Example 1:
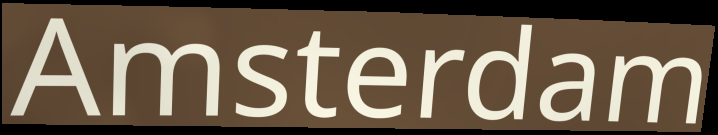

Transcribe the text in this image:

Amsterdam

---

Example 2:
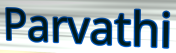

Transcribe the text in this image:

Parvathi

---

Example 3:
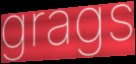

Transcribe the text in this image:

grags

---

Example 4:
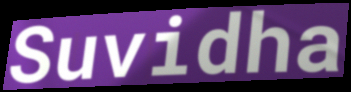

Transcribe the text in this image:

Suvidha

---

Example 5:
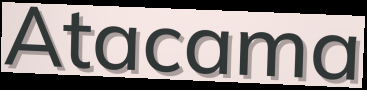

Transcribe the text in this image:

Atacama